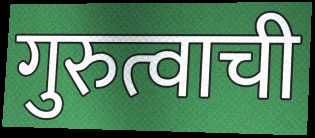
गुरुत्वाची